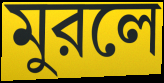
মুরলে